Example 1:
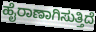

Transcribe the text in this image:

ಹೈರಾಣಾಗಿಸುತ್ತಿದೆ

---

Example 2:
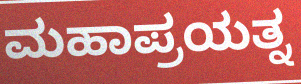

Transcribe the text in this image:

ಮಹಾಪ್ರಯತ್ನ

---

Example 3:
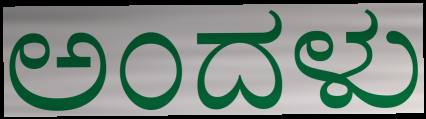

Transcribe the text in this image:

ಅಂದಳು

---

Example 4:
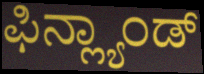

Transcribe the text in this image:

ಫಿನ್ಲ್ಯಾಂಡ್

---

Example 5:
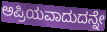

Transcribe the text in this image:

ಅಪ್ರಿಯವಾದುದನ್ನೇ